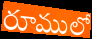
రూములో